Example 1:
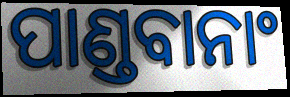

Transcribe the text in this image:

ପାଣ୍ଡବାନାଂ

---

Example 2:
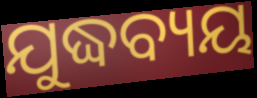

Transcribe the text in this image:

ଯୁଦ୍ଧବ୍ୟୟ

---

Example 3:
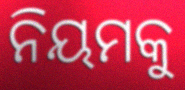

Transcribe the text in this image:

ନିୟମକୁ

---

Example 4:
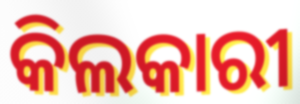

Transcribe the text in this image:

କିଲକାରୀ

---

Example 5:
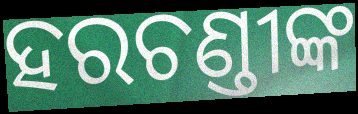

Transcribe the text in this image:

ହରଚଣ୍ଡୀଙ୍କ